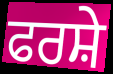
ਫਰਸ਼ੇ